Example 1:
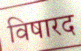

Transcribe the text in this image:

विषारद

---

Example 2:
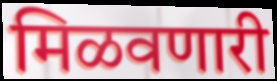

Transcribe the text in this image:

मिळवणारी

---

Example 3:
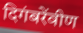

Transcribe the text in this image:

दिगंबरेंवीण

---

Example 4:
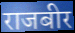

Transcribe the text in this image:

राजबीर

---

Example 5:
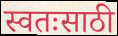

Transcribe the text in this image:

स्वतःसाठी